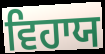
ਵਿਹਾਯ